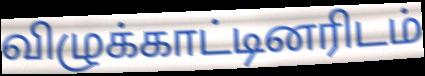
விழுக்காட்டினரிடம்